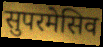
सुपरमेसिव